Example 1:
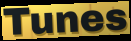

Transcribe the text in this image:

Tunes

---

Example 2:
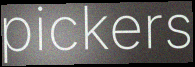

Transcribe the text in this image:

pickers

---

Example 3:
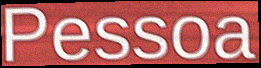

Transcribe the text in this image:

Pessoa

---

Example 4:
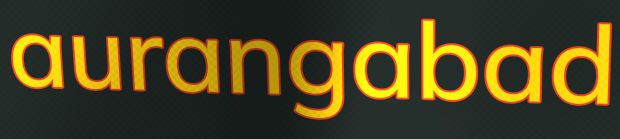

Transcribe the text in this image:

aurangabad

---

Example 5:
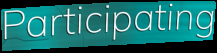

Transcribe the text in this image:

Participating